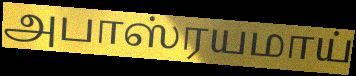
அபாஸ்ரயமாய்